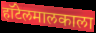
हॉटेलमालकाला